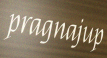
pragnajup